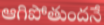
ఆగిపోతుందనే